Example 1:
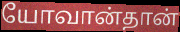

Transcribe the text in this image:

யோவான்தான்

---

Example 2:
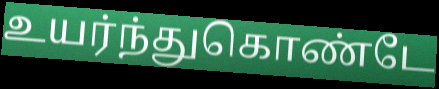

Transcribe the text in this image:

உயர்ந்துகொண்டே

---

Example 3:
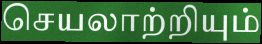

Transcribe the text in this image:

செயலாற்றியும்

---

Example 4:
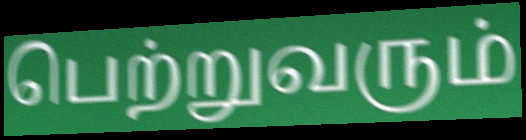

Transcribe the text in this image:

பெற்றுவரும்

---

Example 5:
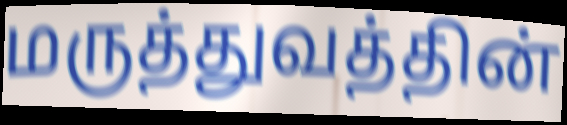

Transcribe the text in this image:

மருத்துவத்தின்